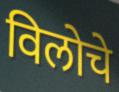
विलोचे